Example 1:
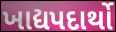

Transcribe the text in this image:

ખાદ્યપદાર્થો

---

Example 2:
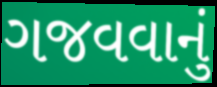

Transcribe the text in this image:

ગજવવાનું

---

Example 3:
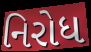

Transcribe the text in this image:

નિરોધ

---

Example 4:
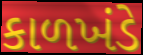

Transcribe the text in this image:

કાળખંડે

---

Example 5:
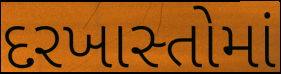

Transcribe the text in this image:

દરખાસ્તોમાં